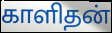
காளிதன்